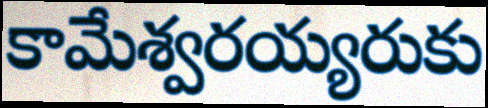
కామేశ్వరయ్యరుకు